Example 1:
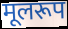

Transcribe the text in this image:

मूलरूप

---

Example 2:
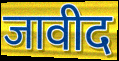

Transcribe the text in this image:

जावीद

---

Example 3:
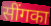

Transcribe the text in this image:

सींगका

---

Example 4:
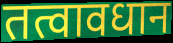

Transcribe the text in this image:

तत्‍वावधान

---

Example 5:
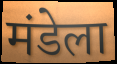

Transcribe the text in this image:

मंडेला